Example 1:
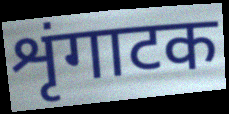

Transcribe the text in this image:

शृंगाटक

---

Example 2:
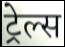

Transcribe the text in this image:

ट्रेल्स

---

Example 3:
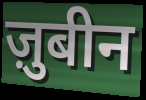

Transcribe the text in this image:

ज़ुबीन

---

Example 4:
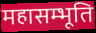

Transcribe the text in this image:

महासम्भूति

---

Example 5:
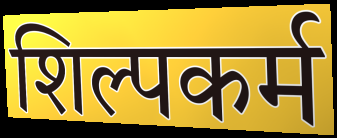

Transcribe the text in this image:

शिल्पकर्म